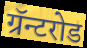
ग्रॅन्टरोड